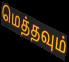
மெத்தவும்